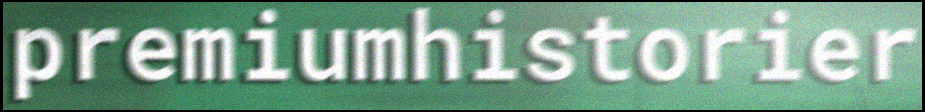
premiumhistorier